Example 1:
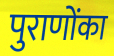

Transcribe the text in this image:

पुराणोंका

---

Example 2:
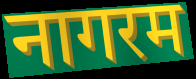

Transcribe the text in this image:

नागरम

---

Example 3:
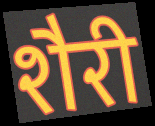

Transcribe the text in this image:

शैरी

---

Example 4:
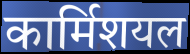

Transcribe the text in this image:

कार्मिशयल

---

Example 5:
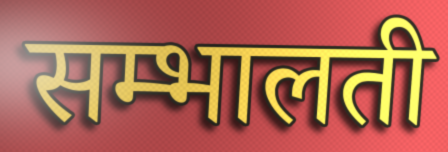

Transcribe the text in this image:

सम्भालती